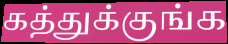
கத்துக்குங்க